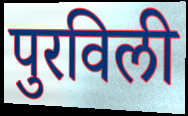
पुरविली